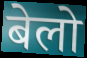
बेलो